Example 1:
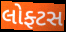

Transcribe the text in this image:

લોફ્ટસ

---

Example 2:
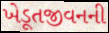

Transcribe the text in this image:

ખેડૂતજીવનની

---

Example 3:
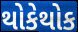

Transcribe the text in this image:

થોકેથોક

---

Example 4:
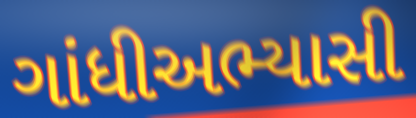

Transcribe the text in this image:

ગાંધીઅભ્યાસી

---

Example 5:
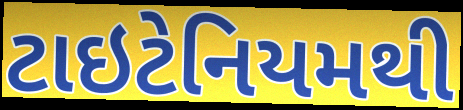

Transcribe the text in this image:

ટાઇટેનિયમથી